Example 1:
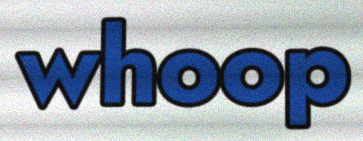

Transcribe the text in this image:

whoop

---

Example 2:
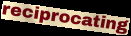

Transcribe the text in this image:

reciprocating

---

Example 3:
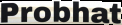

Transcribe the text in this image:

Probhat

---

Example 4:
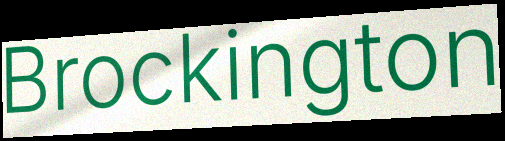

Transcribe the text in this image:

Brockington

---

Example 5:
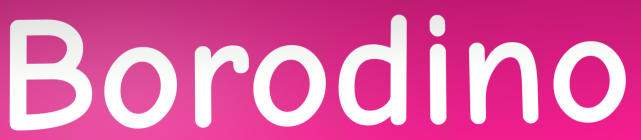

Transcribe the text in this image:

Borodino